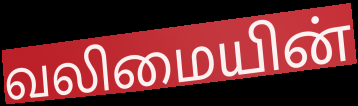
வலிமையின்